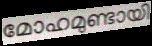
മോഹമുണ്ടായി